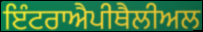
ਇੰਟਰਾਐਪੀਥੈਲੀਅਲ